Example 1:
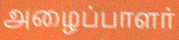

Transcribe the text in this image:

அழைப்பாளர்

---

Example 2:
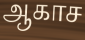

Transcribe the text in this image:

ஆகாச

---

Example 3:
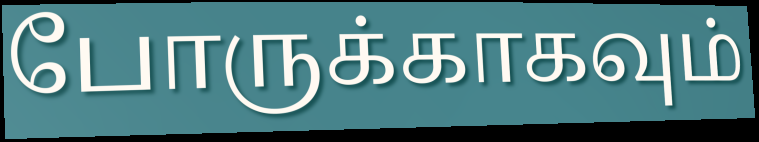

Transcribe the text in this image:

போருக்காகவும்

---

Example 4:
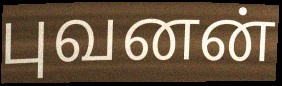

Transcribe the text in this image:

புவனன்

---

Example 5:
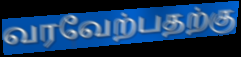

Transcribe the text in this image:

வரவேற்பதற்கு